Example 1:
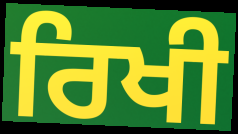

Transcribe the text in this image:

ਰਿਖੀ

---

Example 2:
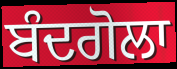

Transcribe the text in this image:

ਬੰਦਗੋਲਾ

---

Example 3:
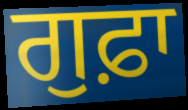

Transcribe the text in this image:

ਗੁਫ਼ਾ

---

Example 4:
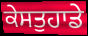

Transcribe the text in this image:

ਕੇਸਤੁਹਾਡੇ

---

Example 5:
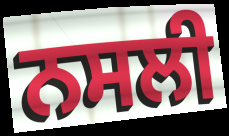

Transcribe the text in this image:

ਨਸਲੀ